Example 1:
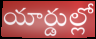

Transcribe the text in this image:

యార్డుల్లో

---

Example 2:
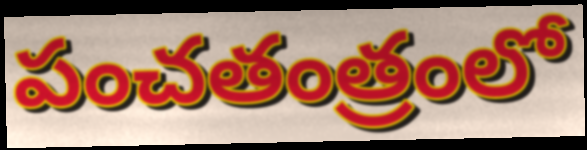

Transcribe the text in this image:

పంచతంత్రంలో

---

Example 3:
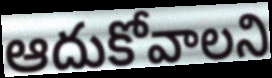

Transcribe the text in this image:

ఆదుకోవాలని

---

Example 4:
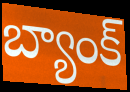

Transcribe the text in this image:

బ్యాంక్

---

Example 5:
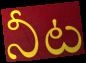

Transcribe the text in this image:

నీట